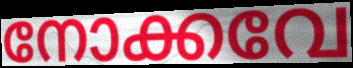
നോക്കവേ